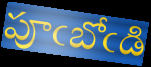
పూఁబోఁడి